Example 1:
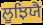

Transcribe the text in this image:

ਲੂਝਿਯੈ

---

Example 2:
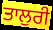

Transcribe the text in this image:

ਤਾਲੁਰੀ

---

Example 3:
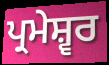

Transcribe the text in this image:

ਪ੍ਰਮੇਸ਼੍ਵਰ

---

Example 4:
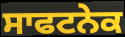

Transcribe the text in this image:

ਸਾਫਟਨੇਕ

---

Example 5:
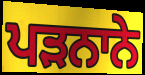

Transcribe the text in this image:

ਪੜਨਾਨੇ